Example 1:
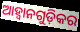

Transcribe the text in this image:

ଆହ୍ୱାନଗୁଡ଼ିକର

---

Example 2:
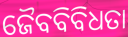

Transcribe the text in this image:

ଜୈବବିବିଧତା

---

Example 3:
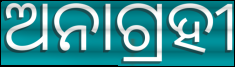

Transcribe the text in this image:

ଅନାଗ୍ରହୀ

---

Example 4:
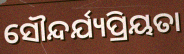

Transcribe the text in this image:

ସୌନ୍ଦର୍ଯ୍ୟପ୍ରିୟତା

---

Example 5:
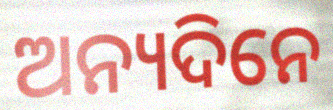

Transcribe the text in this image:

ଅନ୍ୟଦିନେ